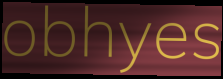
obhyes